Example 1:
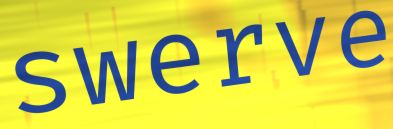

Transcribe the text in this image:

swerve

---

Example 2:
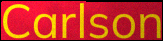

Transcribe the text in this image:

Carlson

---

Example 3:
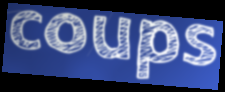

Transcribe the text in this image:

coups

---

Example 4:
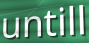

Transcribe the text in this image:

untill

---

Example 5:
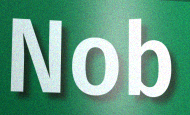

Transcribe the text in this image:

Nob